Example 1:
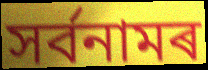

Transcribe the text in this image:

সৰ্বনামৰ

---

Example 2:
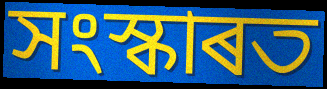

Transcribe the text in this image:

সংস্কাৰত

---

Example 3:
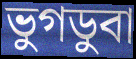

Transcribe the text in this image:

ভুগডুবা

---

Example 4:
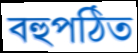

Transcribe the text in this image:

বহুপঠিত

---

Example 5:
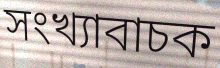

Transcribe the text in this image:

সংখ্যাবাচক